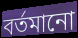
বৰ্তমানো